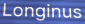
Longinus